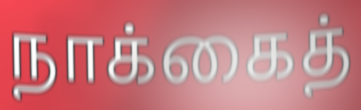
நாக்கைத்